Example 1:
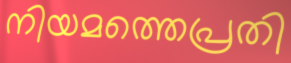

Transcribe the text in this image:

നിയമത്തെപ്രതി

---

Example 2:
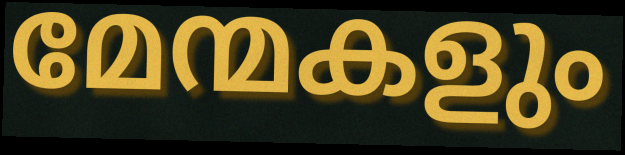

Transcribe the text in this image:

മേന്മകളും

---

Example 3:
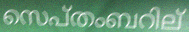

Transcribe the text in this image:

സെപ്തംബറില്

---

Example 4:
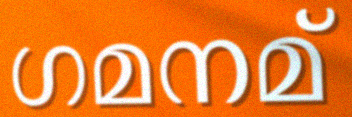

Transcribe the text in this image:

ഗമനമ്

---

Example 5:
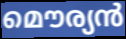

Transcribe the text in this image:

മൌര്യൻ